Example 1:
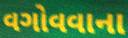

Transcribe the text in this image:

વગોવવાના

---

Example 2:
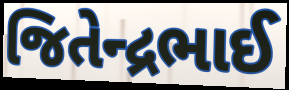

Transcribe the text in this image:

જિતેન્દ્રભાઈ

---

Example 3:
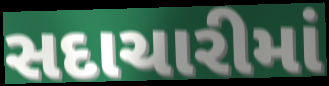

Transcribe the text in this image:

સદાચારીમાં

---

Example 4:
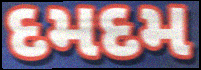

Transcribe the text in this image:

દમદમ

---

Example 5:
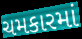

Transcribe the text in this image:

ચમકારમાં